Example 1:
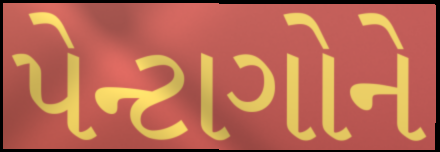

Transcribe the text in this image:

પેન્ટાગોને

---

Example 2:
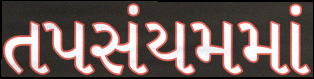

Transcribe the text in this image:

તપસંયમમાં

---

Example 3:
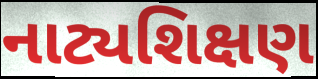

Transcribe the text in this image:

નાટ્યશિક્ષણ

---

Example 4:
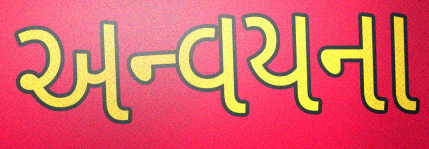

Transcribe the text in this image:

અન્વયના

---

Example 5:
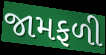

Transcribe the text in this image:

જામફળી